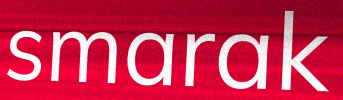
smarak